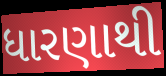
ધારણાથી